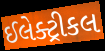
ઈલેક્ટ્રીકલ